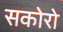
सकोरो